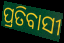
ପ୍ରତିବାସୀ